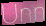
Unn